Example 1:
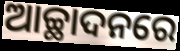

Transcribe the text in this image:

ଆଚ୍ଛାଦନରେ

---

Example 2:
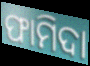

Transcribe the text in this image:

ଫାମିଦା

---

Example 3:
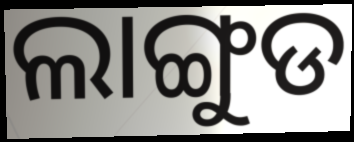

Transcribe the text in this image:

ଲାଙ୍ଗୁଡ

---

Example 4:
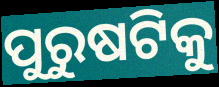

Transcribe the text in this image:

ପୁରୁଷଟିକୁ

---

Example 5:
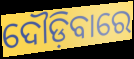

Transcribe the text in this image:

ଦୌଡ଼ିବାରେ